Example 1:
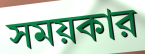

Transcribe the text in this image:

সময়কার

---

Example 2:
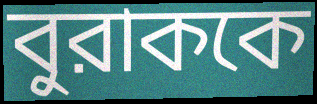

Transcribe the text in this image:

বুরাককে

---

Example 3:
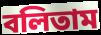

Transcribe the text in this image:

বলিতাম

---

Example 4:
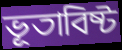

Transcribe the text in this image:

ভূতাবিষ্ট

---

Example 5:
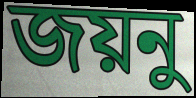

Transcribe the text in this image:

জয়নু